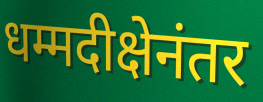
धम्मदीक्षेनंतर